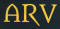
ARV